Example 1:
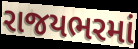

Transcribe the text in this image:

રાજયભરમાં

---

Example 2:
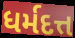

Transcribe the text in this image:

ધર્મદત્ત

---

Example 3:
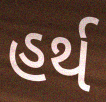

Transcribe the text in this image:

હર્થ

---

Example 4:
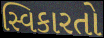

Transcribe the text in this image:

સ્વિકારતો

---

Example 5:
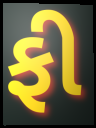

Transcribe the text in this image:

ફી